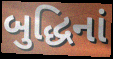
બુદ્ધિનાં